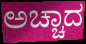
ಅಚ್ಚಾದ